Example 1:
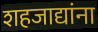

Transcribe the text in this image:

शहजाद्यांना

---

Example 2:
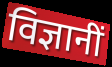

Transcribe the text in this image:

विज्ञानीं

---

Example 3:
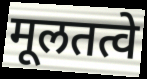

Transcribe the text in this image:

मूलतत्वे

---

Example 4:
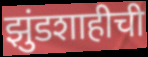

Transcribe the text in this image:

झुंडशाहीची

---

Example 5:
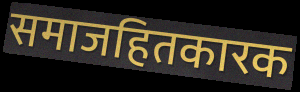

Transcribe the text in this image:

समाजहितकारक